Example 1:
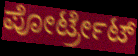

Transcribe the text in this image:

ಪೋರ್ಟ್ರೇಟ್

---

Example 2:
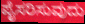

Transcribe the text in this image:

ಪೈಸರಿಸುವುದು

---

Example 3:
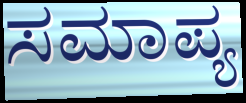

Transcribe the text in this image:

ಸಮಾಪ್ಯ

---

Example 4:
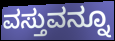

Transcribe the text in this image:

ವಸ್ತುವನ್ನೂ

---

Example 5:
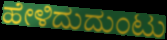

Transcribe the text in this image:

ಹೇಳಿದುದುಂಟು